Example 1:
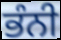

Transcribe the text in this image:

ਭੰਨੀ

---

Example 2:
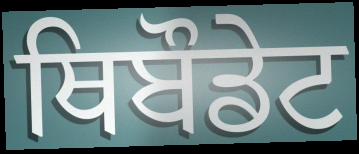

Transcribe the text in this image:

ਥਿਬੌਡੇਟ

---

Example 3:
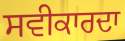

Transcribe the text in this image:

ਸਵੀਕਾਰਦਾ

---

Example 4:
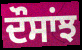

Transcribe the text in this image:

ਦੌਸਾਂਝ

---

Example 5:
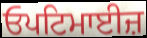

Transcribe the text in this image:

ਓਪਟਿਮਾਈਜ਼